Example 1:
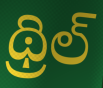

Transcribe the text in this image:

థ్రిల్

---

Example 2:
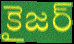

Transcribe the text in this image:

కైజర్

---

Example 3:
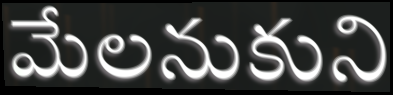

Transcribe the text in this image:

మేలనుకుని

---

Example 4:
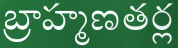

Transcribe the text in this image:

బ్రాహ్మణతర్ల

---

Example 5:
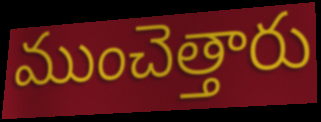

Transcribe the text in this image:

ముంచెత్తారు